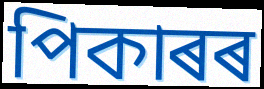
পিকাৰৰ